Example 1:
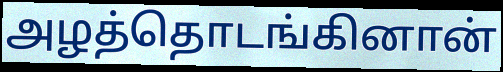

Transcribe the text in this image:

அழத்தொடங்கினான்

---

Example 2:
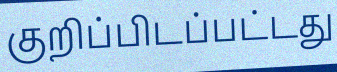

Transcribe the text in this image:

குறிப்பிடப்பட்டது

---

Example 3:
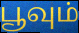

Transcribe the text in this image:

பூவும்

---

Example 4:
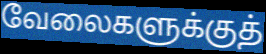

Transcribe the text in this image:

வேலைகளுக்குத்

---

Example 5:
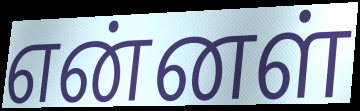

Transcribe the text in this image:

என்னள்